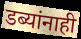
डब्यांनाही